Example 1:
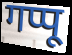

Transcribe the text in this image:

गप्पू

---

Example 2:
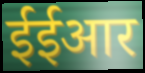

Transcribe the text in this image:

ईईआर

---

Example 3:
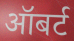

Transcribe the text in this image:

ऑबर्ट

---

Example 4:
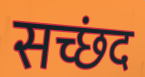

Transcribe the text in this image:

सच्छंद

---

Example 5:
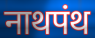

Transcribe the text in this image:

नाथपंथ